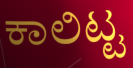
ಕಾಲಿಟ್ಟ